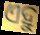
ଏହୁ